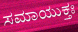
ಸಮಾಯುಕ್ತಃ